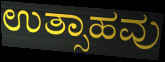
ಉತ್ಸಾಹವು